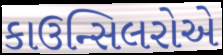
કાઉન્સિલરોએ